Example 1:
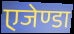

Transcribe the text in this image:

एजेण्डा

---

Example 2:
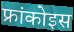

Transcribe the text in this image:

फ्रांकोइस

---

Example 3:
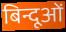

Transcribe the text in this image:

बिन्दूओं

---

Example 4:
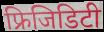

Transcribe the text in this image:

फ्रिजिडिटी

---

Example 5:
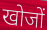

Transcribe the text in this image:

खोजों